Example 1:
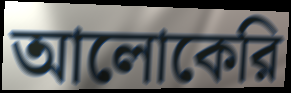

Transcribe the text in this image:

আলোকেরি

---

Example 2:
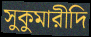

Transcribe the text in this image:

সুকুমারীদি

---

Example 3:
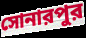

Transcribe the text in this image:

সোনারপুর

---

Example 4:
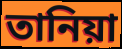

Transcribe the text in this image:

তানিয়া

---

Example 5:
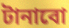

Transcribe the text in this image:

টানাবো